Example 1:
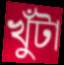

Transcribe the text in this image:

খুঁটা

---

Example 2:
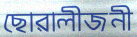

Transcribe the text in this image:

ছোৱালীজনী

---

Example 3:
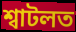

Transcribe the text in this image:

শ্বাটলত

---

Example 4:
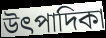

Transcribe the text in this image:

উৎপাদিকা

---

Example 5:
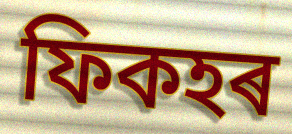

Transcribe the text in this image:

ফিকহৰ